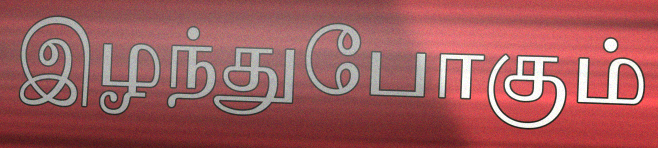
இழந்துபோகும்